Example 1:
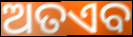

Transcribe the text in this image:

ଅତଏବ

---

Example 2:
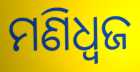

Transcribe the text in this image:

ମଣିଧ୍ୱଜ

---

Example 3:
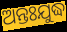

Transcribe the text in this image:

ଅନ୍ତଃଯୁଦ୍ଧ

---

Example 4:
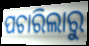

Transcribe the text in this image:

ପଚାରିଲାରୁ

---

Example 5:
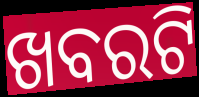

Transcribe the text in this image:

ଖବରଟି